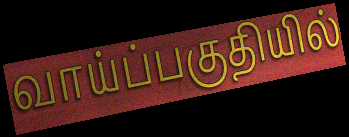
வாய்ப்பகுதியில்